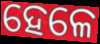
ହେଳେ